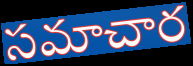
సమాచార